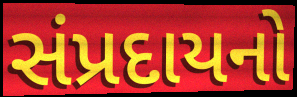
સંપ્રદાયનો